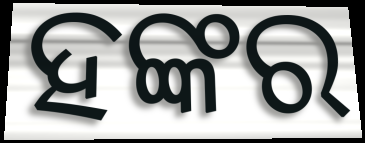
ହଙ୍କର